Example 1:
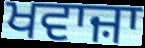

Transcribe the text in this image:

ਖਵਾਜ਼ਾ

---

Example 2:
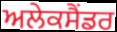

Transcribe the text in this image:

ਅਲੇਕਸੈਂਡਰ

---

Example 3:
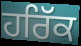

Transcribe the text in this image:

ਹਰਿੱਕ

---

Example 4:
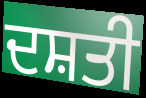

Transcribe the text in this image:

ਦਸ਼ਤੀ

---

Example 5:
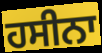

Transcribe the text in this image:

ਹਸੀਨਾ